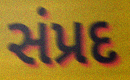
સંપ્રદ